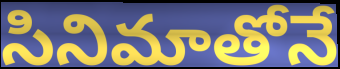
సినిమాతోనే